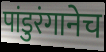
पांडुरंगानेच